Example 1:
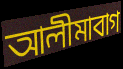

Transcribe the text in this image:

আলীমাবাগ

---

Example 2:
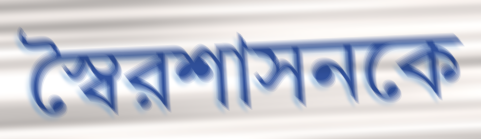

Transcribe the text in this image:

স্বৈরশাসনকে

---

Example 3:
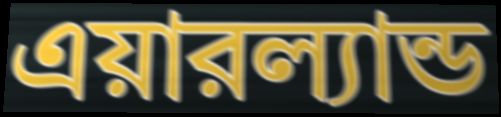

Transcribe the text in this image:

এয়ারল্যান্ড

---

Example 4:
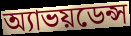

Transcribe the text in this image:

অ্যাভয়ডেন্স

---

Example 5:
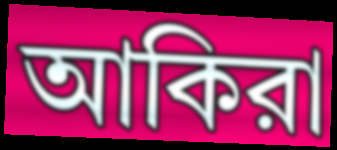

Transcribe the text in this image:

আকিরা